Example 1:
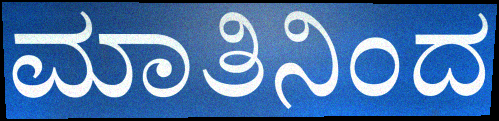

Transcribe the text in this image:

ಮಾತಿನಿಂದ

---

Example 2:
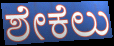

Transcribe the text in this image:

ಶೇಕೆಲು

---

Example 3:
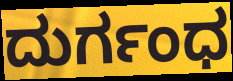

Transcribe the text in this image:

ದುರ್ಗಂಧ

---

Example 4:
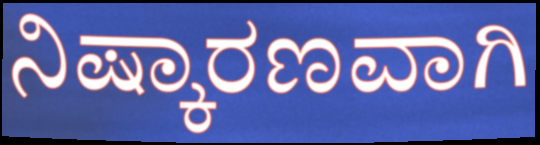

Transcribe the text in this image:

ನಿಷ್ಕಾರಣವಾಗಿ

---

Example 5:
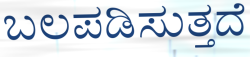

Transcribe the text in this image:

ಬಲಪಡಿಸುತ್ತದೆ